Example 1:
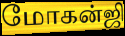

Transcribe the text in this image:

மோகன்ஜி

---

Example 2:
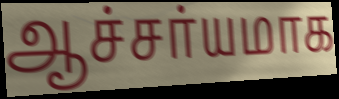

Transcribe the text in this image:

ஆச்சர்யமாக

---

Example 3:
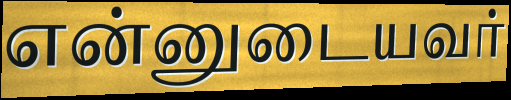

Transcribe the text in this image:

என்னுடையவர்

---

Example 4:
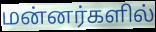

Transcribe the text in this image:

மன்னர்களில்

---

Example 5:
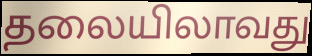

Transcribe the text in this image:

தலையிலாவது